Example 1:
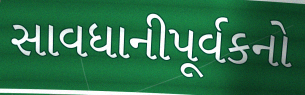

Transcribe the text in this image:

સાવધાનીપૂર્વકનો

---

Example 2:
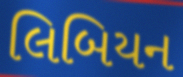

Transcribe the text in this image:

લિબિયન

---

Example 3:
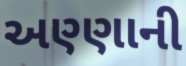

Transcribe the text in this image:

અણ્ણાની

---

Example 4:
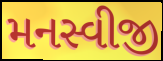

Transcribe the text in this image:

મનસ્વીજી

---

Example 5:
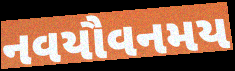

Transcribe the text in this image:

નવયૌવનમય